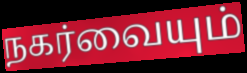
நகர்வையும்